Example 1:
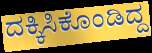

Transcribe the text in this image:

ದಕ್ಕಿಸಿಕೊಂಡಿದ್ದ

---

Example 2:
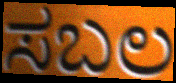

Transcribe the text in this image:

ಸಬಲ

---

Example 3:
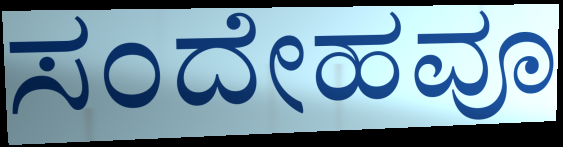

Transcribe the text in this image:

ಸಂದೇಹವೂ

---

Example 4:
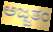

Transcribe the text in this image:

ಅಜ್ಜತಂ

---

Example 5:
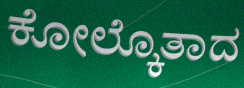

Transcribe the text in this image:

ಕೋಲ್ಕೊತಾದ